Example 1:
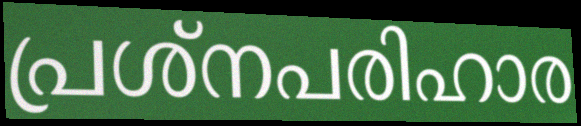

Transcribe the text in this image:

പ്രശ്നപരിഹാര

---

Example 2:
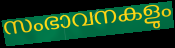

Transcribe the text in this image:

സംഭാവനകളും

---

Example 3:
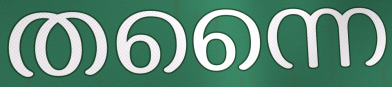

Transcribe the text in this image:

തന്നൈ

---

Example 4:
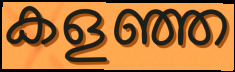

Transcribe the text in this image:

കളഞ്ഞ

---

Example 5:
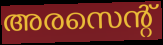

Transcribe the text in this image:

അരസെന്റ്